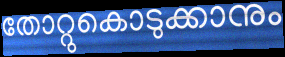
തോറ്റുകൊടുക്കാനും